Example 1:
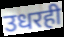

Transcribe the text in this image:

उधरही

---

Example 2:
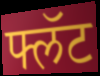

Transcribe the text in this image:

फ्लॅट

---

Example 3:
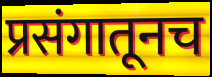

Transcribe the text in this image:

प्रसंगातूनच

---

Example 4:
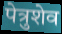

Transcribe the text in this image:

पेत्रुशेव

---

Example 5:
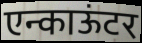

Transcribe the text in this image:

एन्काऊंटर